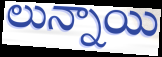
లున్నాయి